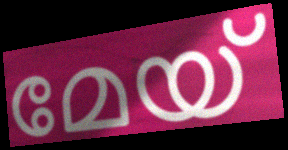
മേയ്